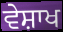
ਵੇਸ਼ਾਖ